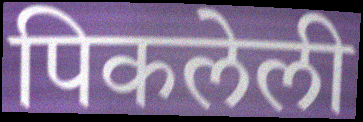
पिकलेली